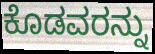
ಕೊಡವರನ್ನು